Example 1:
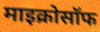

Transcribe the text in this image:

माइक्रोसॉफ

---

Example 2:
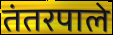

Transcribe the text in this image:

तंतरपाले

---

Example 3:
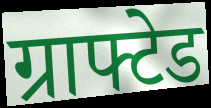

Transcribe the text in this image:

ग्राफ्टेड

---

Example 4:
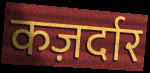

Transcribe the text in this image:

कज़र्दार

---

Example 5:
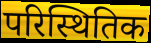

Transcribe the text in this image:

परिस्थितिक